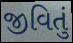
જીવિતું